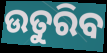
ଉତୁରିବ